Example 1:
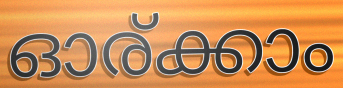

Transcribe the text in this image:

ഓര്ക്കാം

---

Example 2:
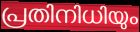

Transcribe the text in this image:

പ്രതിനിധിയും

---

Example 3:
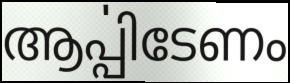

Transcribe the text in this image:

ആൎപ്പിടേണം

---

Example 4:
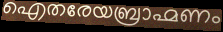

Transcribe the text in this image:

ഐതരേയബ്രാഹ്മണം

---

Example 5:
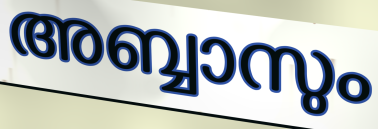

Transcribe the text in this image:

അബ്ബാസും